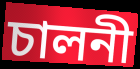
চালনী